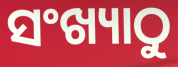
ସଂଖ୍ୟାଠୁ